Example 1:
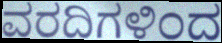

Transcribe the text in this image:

ವರದಿಗಳಿಂದ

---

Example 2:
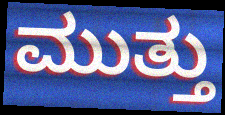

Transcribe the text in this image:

ಮುತ್ತು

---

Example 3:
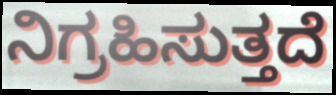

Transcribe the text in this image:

ನಿಗ್ರಹಿಸುತ್ತದೆ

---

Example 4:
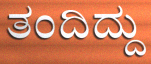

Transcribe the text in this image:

ತಂದಿದ್ದು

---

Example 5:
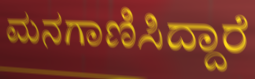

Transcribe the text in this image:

ಮನಗಾಣಿಸಿದ್ದಾರೆ